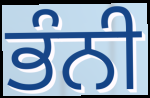
ਭੰਨੀ